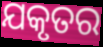
ଯକୃତର